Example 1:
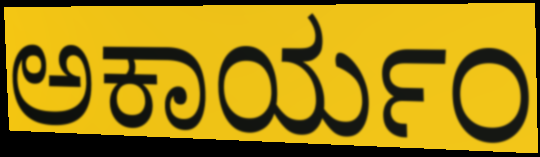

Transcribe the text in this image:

ಅಕಾರ್ಯಂ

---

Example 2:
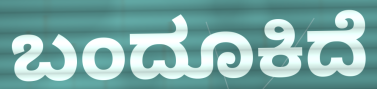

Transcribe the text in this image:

ಬಂದೂಕಿದೆ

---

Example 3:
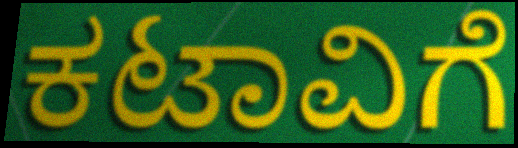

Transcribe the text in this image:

ಕಟಾವಿಗೆ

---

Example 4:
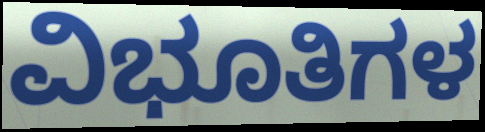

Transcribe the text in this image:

ವಿಭೂತಿಗಳ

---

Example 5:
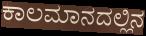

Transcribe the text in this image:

ಕಾಲಮಾನದಲ್ಲಿನ